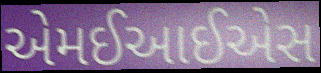
એમઈઆઈએસ